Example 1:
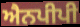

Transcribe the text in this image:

ਐਨਪੀਪੀ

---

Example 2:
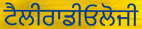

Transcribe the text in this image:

ਟੈਲੀਰਾਡੀਓਲੋਜੀ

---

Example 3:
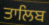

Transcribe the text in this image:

ਤਾਲਿਬ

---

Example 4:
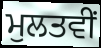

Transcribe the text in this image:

ਮੁਲਤਵੀਂ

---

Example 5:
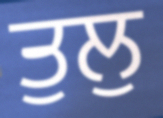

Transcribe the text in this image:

ਤੁਲੁ